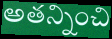
అతన్నించి